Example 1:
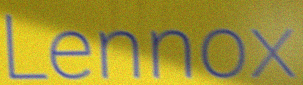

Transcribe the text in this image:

Lennox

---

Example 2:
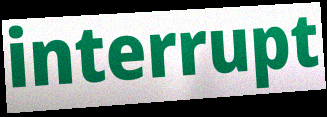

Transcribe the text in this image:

interrupt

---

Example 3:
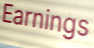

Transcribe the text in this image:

Earnings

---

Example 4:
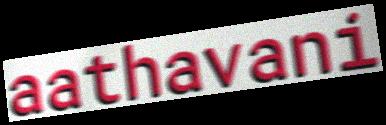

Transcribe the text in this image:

aathavani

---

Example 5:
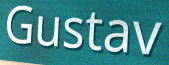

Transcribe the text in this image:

Gustav